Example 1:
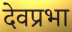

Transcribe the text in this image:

देवप्रभा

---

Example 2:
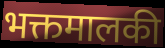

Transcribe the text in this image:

भक्तमालकी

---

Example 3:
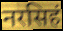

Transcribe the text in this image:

नरसिहं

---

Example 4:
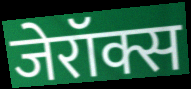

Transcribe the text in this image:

जेरॉक्स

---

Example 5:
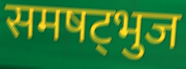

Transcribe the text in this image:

समषट्भुज